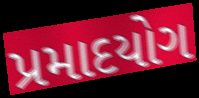
પ્રમાદયોગ